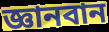
জ্ঞানবান